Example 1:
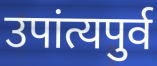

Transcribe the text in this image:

उपांत्यपुर्व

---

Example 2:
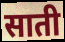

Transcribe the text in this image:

साती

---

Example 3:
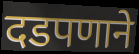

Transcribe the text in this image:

दडपणाने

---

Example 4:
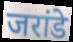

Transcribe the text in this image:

जरांडे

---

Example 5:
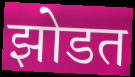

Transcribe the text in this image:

झोडत